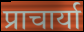
प्राचार्या